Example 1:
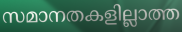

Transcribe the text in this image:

സമാനതകളില്ലാത്ത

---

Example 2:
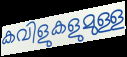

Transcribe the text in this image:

കവിളുകളുമുള്ള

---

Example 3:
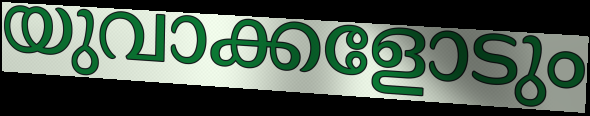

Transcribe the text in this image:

യുവാക്കളോടും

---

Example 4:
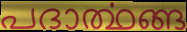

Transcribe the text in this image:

പദാൎത്ഥങ്ങ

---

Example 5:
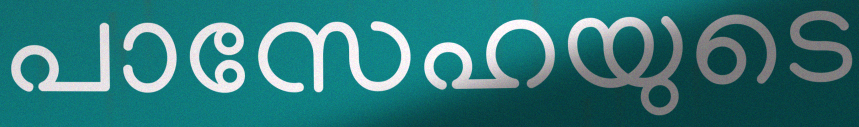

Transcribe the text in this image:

പാസേഹയുടെ